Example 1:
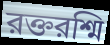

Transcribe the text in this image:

রক্তরশ্মি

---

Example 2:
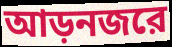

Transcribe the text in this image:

আড়নজরে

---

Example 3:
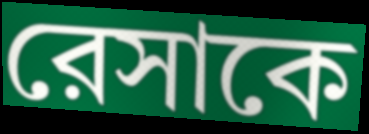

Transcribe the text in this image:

রেসাকে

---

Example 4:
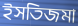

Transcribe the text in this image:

ইসতিজমা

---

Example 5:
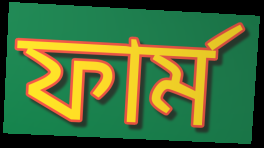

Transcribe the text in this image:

ফার্ম